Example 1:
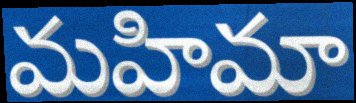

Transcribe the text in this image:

మహిమా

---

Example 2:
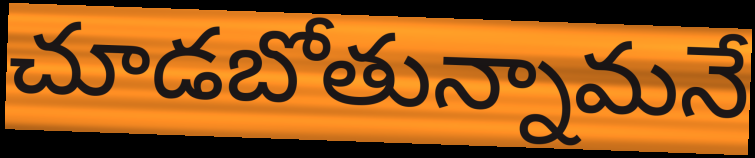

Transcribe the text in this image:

చూడబోతున్నామనే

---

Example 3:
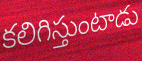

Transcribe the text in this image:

కలిగిస్తుంటాడు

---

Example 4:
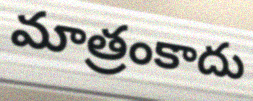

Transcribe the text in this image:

మాత్రంకాదు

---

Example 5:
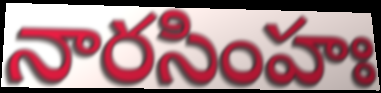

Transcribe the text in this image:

నారసింహః